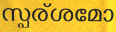
സ്പര്ശമോ